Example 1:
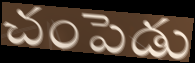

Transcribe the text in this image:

చంపెడు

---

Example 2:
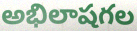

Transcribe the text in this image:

అభిలాషగల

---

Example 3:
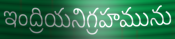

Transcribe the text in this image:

ఇంద్రియనిగ్రహమును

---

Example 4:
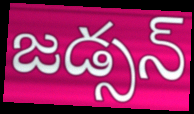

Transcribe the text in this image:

జడ్సన్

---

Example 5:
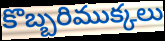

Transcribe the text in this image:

కొబ్బరిముక్కలు